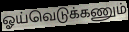
ஓய்வெடுக்கணும்